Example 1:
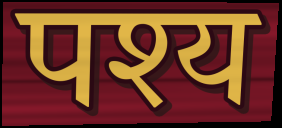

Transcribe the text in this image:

पश्य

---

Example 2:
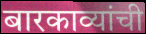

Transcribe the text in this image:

बारकाव्यांची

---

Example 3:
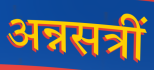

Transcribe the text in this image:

अन्नसत्रीं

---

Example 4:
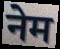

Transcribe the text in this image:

नेम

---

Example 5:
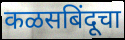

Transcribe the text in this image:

कळसबिंदूचा